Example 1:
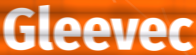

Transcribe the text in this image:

Gleevec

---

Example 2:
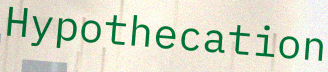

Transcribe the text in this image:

Hypothecation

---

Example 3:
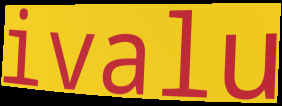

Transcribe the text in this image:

ivalu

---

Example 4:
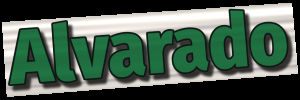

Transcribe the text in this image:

Alvarado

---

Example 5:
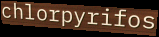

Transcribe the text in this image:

chlorpyrifos